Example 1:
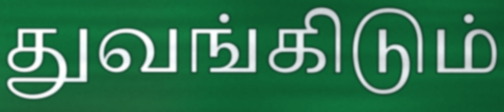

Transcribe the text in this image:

துவங்கிடும்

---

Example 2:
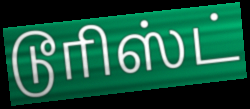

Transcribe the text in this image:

டூரிஸ்ட்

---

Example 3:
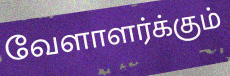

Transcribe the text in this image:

வேளாளர்க்கும்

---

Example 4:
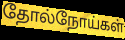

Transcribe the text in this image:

தோல்நோய்கள்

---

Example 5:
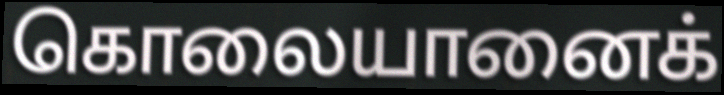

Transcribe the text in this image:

கொலையானைக்